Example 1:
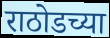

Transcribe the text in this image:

राठोडच्या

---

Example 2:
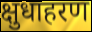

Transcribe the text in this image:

क्षुधाहरण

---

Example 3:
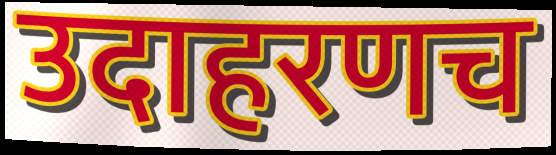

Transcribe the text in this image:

उदाहरणच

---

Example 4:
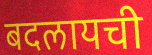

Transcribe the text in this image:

बदलायची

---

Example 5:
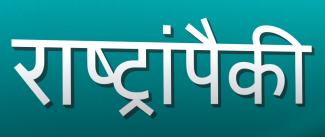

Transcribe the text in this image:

राष्ट्रांपैकी